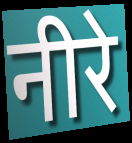
नीरे